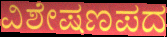
ವಿಶೇಷಣಪದ